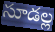
సూడల్ల